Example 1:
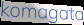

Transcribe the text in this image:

komagata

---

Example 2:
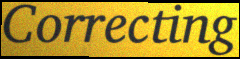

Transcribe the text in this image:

Correcting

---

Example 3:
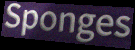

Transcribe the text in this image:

Sponges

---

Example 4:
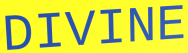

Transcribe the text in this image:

DIVINE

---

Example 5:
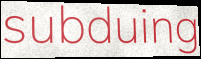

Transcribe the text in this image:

subduing